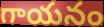
గాయనం